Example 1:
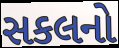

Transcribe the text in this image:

સકલનો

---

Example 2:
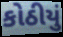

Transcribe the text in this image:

કોઠીયું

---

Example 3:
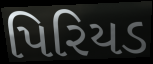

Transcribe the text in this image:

પિરિયડ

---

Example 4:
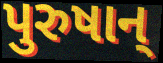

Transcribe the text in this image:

પુરુષાન્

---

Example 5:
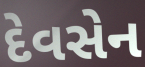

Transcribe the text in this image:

દેવસેન